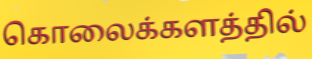
கொலைக்களத்தில்